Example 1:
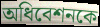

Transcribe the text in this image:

অধিবেশনকে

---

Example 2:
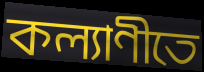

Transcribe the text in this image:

কল্যাণীতে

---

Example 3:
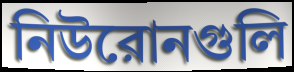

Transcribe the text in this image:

নিউরোনগুলি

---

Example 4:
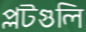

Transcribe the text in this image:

প্লটগুলি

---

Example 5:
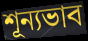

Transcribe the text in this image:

শূন্যভাব